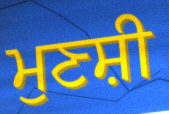
ਮੁਣਸ਼ੀ